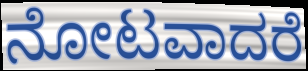
ನೋಟವಾದರೆ